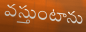
వస్తుంటాను